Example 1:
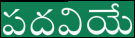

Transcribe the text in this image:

పదవియే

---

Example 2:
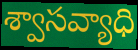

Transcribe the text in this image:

శ్వాసవ్యాధి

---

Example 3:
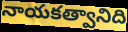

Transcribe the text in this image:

నాయకత్వానిది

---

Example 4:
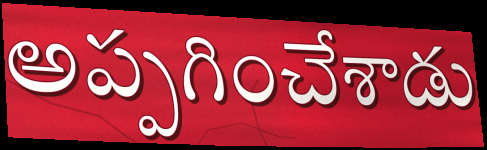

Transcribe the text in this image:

అప్పగించేశాడు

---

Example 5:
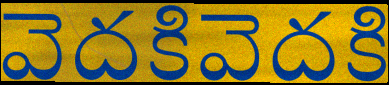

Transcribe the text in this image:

వెదకివెదకి